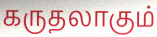
கருதலாகும்